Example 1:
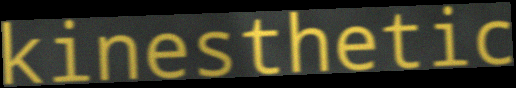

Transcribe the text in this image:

kinesthetic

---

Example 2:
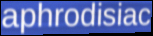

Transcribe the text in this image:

aphrodisiac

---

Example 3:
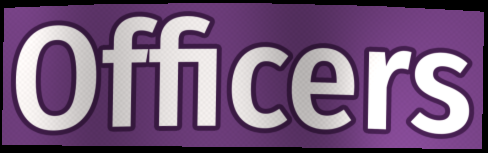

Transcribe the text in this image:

Officers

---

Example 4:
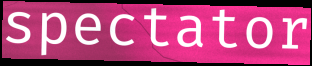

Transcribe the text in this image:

spectator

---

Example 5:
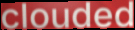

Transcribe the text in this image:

clouded